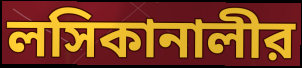
লসিকানালীর